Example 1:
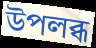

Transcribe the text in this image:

উপলব্ধ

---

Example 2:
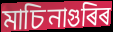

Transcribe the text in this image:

মাচিনাগুৰিৰ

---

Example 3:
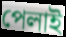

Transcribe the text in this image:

পেলাই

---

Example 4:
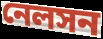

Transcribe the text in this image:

নেলসন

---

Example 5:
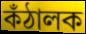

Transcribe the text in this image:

কঁঠালক